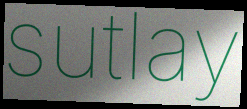
sutlay